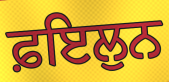
ਫ਼ਇਲੁਨ